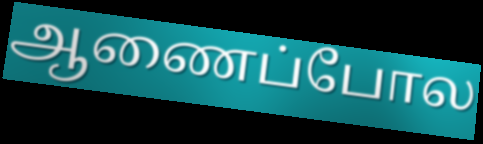
ஆணைப்போல